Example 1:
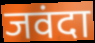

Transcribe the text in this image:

जवंदा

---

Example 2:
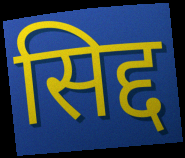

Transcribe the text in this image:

सिद्द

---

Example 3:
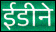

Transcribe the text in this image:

ईडीने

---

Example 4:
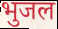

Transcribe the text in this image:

भुजल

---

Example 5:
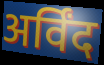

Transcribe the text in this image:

अर्विंद